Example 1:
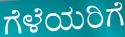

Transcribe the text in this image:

ಗೆಳೆಯರಿಗೆ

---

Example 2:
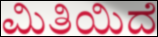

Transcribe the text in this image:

ಮಿತಿಯಿದೆ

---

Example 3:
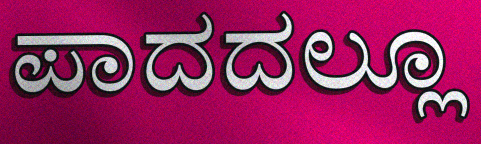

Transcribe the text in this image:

ಪಾದದಲ್ಲೂ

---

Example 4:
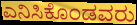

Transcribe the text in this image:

ಎನಿಸಿಕೊಂಡವರು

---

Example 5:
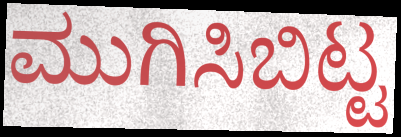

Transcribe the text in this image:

ಮುಗಿಸಿಬಿಟ್ಟ